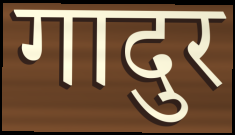
गादुर